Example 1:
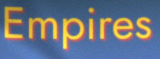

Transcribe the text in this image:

Empires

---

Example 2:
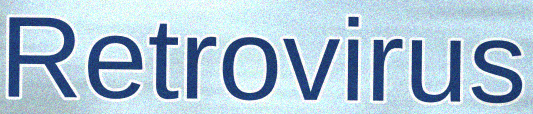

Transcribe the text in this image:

Retrovirus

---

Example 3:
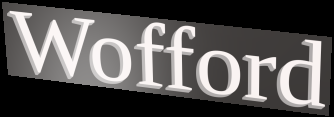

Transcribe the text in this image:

Wofford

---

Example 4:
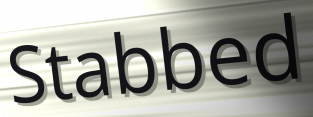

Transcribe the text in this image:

Stabbed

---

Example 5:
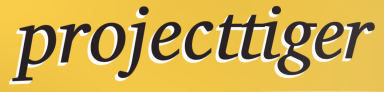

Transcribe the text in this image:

projecttiger